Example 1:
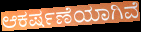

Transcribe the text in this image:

ಆಕರ್ಷಣೆಯಾಗಿವೆ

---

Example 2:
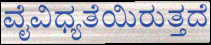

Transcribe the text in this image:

ವೈವಿಧ್ಯತೆಯಿರುತ್ತದೆ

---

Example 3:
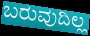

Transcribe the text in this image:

ಬರುವುದಿಲ್ಲ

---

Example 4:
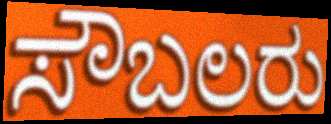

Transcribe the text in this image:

ಸೌಬಲರು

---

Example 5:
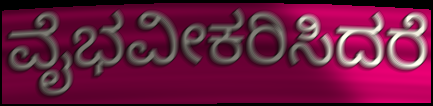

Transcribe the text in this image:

ವೈಭವೀಕರಿಸಿದರೆ